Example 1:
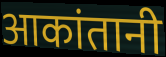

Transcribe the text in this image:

आकांतानी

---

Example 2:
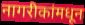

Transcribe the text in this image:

नागरीकांमधून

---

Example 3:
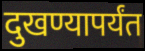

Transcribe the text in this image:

दुखण्यापर्यंत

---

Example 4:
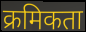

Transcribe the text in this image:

क्रमिकता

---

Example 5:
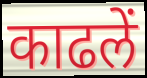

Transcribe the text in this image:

काढलें